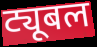
ट्यूबल